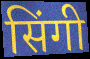
सिंगी